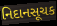
નિદાનસૂચક